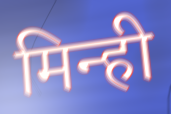
मिन्ही